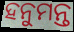
ହନୁମନ୍ତ